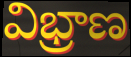
విభ్రాణ